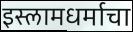
इस्लामधर्माचा